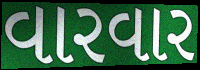
વારવાર